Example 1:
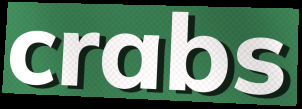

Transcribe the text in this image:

crabs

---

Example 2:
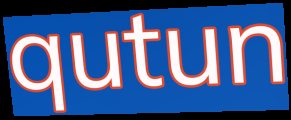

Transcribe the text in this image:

qutun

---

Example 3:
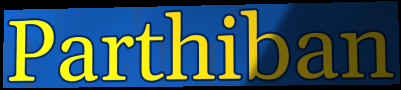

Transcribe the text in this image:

Parthiban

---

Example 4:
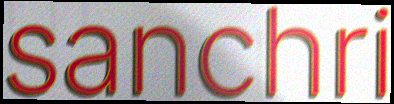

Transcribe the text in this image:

sanchri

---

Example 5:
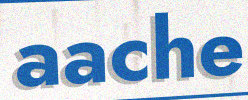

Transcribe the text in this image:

aache